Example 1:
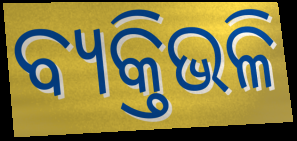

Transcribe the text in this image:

ବ୍ୟକ୍ତିଭଳି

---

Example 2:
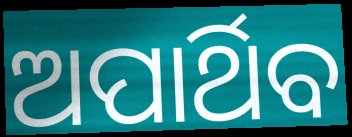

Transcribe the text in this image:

ଅପାର୍ଥିବ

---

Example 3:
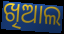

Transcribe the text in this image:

ଖିଆଲ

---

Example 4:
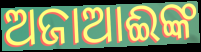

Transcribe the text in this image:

ଅଜାଆଈଙ୍କ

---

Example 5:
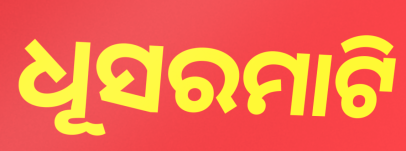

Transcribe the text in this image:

ଧୂସରମାଟି